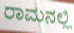
ರಾಮನಲ್ಲಿ